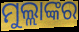
ମୁଲ୍ଲାଙ୍କର